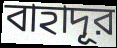
বাহাদূর